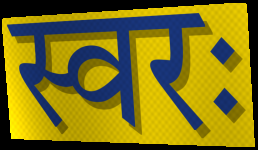
स्वरः